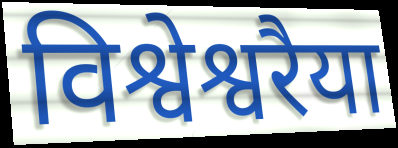
विश्वेश्वरैया